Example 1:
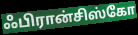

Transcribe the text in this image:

ஃபிரான்சிஸ்கோ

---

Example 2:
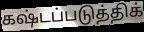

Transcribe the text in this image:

கஷ்டப்படுத்திக்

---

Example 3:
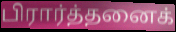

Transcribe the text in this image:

பிரார்த்தனைக்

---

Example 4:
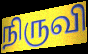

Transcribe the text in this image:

நிருவி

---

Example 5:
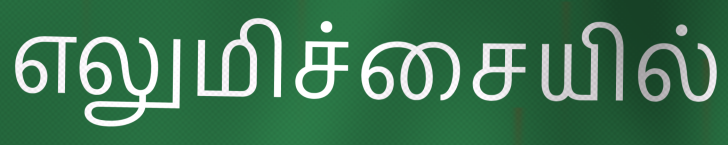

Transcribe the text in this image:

எலுமிச்சையில்